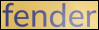
fender